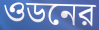
ওডনের